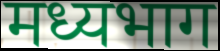
मध्यभाग